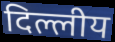
दिल्लीय